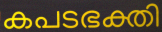
കപടഭക്തി